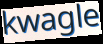
kwagle